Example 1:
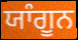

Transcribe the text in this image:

ਯਾੰਗੂਨ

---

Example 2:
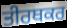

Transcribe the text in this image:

ਤੀਰਥਕਰ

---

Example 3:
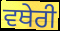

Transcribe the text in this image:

ਵਥੇਰੀ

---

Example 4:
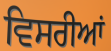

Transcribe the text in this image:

ਵਿਸਰੀਆਂ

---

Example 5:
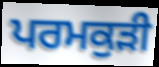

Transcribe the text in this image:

ਪਰਮਕੁੜੀ